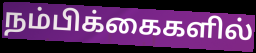
நம்பிக்கைகளில்